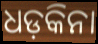
ଧଡ଼କିନା